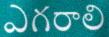
ఎగరాలి